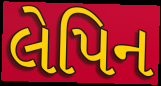
લેપિન